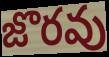
జొరవు